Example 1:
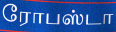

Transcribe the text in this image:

ரோபஸ்டா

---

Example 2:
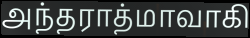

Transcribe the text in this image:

அந்தராத்மாவாகி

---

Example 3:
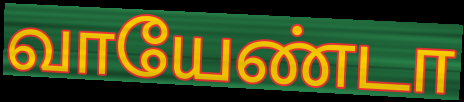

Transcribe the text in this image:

வாயேண்டா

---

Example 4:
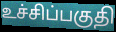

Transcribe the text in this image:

உச்சிப்பகுதி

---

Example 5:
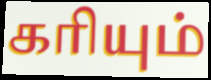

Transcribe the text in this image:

கரியும்